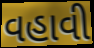
વહાવી